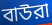
বাউরা